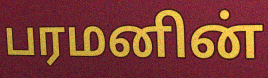
பரமனின்